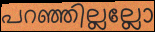
പറഞ്ഞില്ലല്ലോ